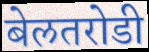
बेलतरोडी